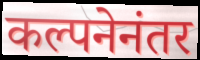
कल्पनेनंतर